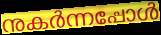
നുകർന്നപ്പോൾ